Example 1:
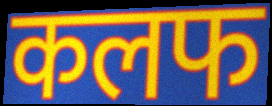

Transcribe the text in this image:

कलफ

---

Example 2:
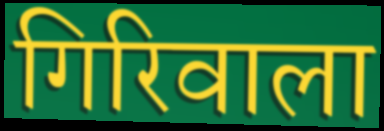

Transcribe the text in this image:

गिरिवाला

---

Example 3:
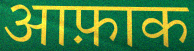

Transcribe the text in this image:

आफ़ाक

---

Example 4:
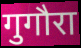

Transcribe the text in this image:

गुगौरा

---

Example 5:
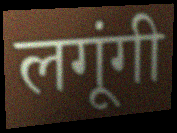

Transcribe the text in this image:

लगूंगी